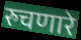
रुचणारे